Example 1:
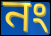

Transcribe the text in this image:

নং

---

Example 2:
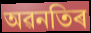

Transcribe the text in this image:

অৱনতিৰ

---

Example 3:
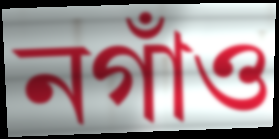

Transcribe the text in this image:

নগাঁও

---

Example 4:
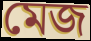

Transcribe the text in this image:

মেজ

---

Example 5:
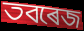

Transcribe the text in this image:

তবৰেজ